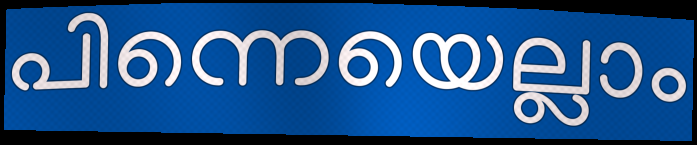
പിന്നെയെല്ലാം